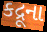
કદ્રૂના